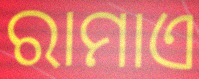
ରାମାଏ